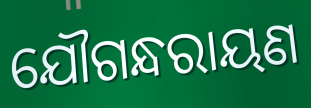
ଯୌଗନ୍ଧରାୟଣ